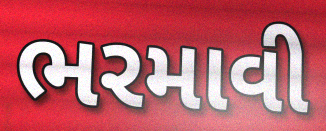
ભરમાવી